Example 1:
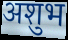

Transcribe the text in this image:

अशुभ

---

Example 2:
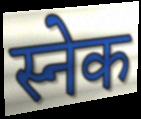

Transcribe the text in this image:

स्नेक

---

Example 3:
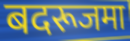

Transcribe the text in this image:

बदरूजमा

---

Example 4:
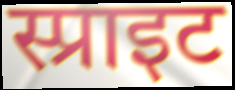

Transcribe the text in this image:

स्प्राइट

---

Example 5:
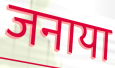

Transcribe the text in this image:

जनाया